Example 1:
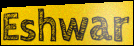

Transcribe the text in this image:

Eshwar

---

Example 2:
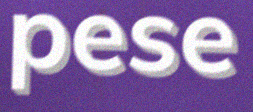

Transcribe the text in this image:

pese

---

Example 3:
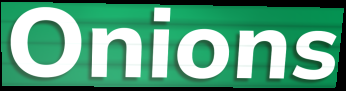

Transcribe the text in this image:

Onions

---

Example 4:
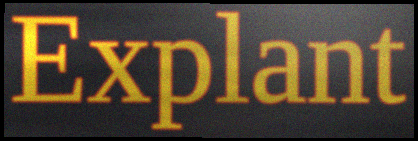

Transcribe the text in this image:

Explant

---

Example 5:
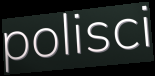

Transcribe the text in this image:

polisci